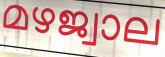
മഴജ്വാല